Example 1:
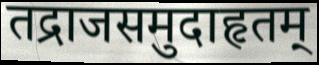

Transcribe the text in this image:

तद्राजसमुदाहृतम्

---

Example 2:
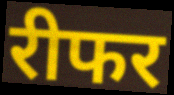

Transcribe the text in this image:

रीफर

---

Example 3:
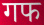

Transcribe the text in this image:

गफ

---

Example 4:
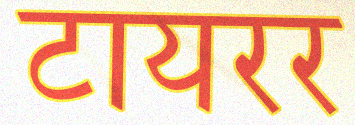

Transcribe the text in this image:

टायरर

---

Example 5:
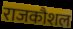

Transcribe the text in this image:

राजकौशल